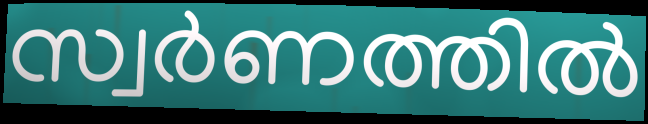
സ്വർണത്തിൽ